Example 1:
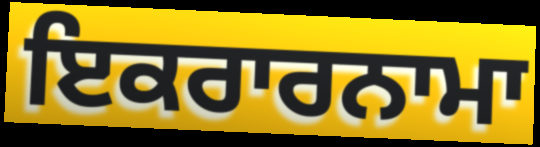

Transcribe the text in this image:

ਇਕਰਾਰਨਾਮਾ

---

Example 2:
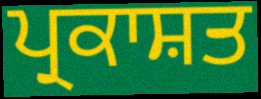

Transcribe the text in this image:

ਪ੍ਰਕਾਸ਼ਤ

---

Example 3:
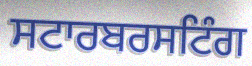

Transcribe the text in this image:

ਸਟਾਰਬਰਸਟਿੰਗ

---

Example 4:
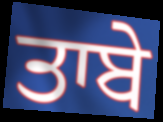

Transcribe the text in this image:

ਤਾਬੇ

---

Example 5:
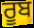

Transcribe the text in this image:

ਰੂਬ